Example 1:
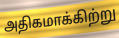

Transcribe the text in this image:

அதிகமாக்கிற்று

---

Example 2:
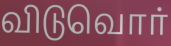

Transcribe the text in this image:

விடுவொர்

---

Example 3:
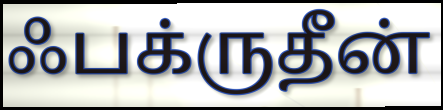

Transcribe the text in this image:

ஃபக்ருதீன்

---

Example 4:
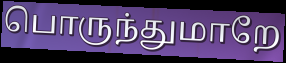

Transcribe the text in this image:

பொருந்துமாறே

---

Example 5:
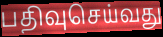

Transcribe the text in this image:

பதிவுசெய்வது